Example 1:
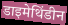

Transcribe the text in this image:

डाइमेथिंडीन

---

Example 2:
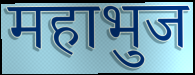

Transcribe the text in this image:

महाभुज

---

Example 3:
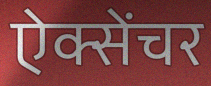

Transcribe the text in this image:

ऐक्सेंचर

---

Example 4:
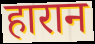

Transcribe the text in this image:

हारान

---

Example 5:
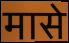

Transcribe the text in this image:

मासे